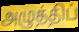
அழுத்திப்